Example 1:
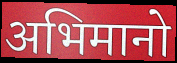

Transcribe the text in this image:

अभिमानो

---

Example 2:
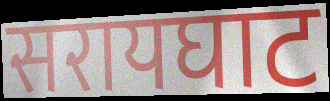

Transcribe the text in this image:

सरायघाट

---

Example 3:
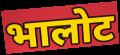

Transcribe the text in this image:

भालोट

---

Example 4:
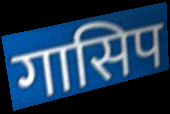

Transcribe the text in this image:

गासिप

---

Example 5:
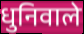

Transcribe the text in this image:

धुनिवाले